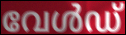
വേൾഡ്